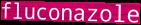
fluconazole